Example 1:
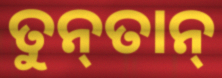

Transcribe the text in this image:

ତୁନ୍‍ତାନ୍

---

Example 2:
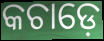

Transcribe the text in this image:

କଚାଡ଼େ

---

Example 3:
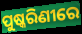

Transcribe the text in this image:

ପୁଷ୍କରିଣୀରେ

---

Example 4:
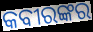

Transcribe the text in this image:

କବୀରଙ୍କର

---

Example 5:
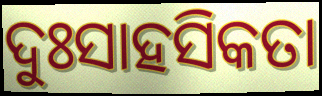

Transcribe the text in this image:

ଦୁଃସାହସିକତା